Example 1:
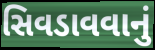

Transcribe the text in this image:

સિવડાવવાનું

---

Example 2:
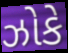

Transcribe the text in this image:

ઝોકે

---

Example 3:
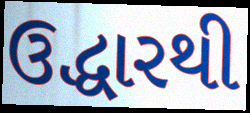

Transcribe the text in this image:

ઉદ્ધારથી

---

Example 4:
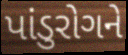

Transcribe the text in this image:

પાંડુરોગને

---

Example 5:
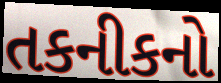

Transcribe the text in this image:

તકનીકનો